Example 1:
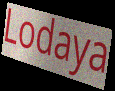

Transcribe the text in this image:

Lodaya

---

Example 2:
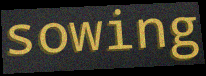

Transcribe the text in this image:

sowing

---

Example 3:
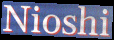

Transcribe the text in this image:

Nioshi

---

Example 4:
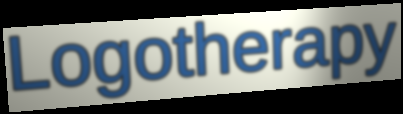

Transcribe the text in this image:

Logotherapy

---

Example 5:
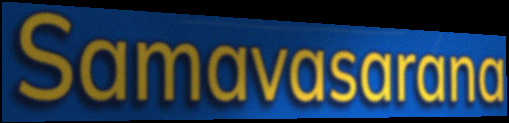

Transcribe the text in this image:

Samavasarana